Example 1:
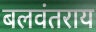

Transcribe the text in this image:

बलवंतराय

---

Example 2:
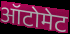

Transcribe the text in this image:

ऑटोमेट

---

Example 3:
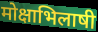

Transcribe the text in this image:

मोक्षाभिलाषी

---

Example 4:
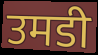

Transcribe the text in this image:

उमडी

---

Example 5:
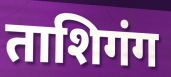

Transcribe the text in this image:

ताशिगंग